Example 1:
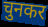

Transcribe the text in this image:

चुनकर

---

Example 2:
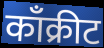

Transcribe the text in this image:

काँक्रीट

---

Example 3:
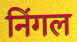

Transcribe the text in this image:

निंगल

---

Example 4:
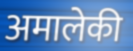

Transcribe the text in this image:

अमालेकी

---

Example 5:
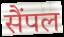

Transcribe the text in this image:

सैंपल